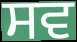
ਸਵ